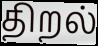
திறல்